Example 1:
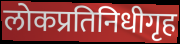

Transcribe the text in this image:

लोकप्रतिनिधीगृह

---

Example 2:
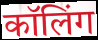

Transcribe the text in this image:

कॉलिंग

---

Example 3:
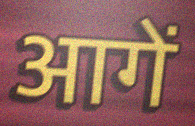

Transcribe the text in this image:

आगें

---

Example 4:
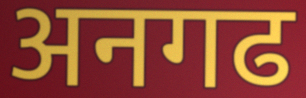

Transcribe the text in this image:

अनगढ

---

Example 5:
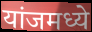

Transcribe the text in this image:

यांजमध्ये